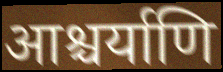
आश्चर्याणि